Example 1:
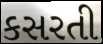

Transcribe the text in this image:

કસરતી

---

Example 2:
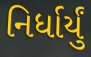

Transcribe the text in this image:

નિર્ધાર્યું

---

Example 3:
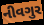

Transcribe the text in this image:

નીવગુર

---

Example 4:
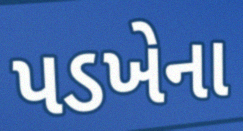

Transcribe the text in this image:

પડખેના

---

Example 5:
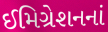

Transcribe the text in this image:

ઈમિગ્રેશનનાં